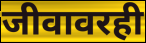
जीवावरही